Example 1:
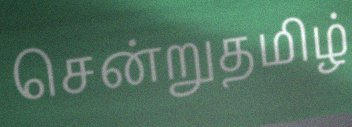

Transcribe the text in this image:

சென்றுதமிழ்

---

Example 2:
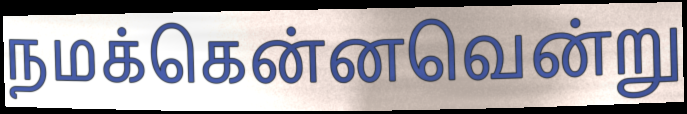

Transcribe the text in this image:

நமக்கென்னவென்று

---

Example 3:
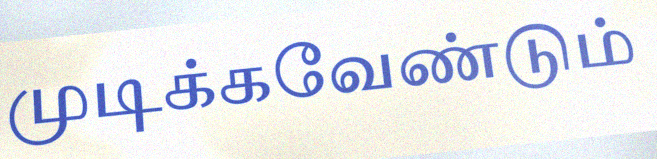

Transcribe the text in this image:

முடிக்கவேண்டும்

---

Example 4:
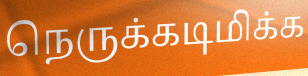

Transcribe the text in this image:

நெருக்கடிமிக்க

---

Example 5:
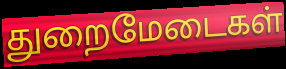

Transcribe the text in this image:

துறைமேடைகள்